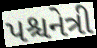
પશ્ચનેત્રી